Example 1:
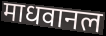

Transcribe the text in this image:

माधवानल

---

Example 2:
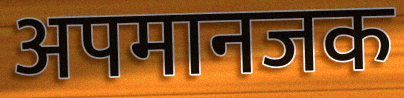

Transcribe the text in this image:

अपमानजक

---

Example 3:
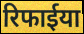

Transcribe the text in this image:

रिफाईया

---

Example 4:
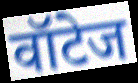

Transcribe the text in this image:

वॉटेज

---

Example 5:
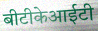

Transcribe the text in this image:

बीटीकेआईटी